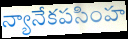
న్యానేకపసింహ